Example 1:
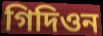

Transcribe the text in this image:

গিদিওন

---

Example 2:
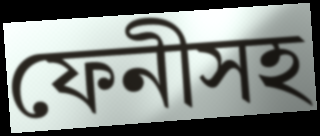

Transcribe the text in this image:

ফেনীসহ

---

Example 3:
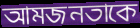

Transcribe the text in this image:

আমজনতাকে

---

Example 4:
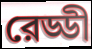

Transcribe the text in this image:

রেড্ডী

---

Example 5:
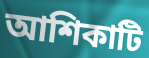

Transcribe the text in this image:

আশিকাটি